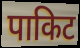
पाकिट